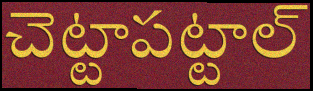
చెట్టాపట్టాల్